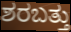
ಶರಬತ್ತು